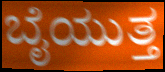
ಬೈಯುತ್ತ